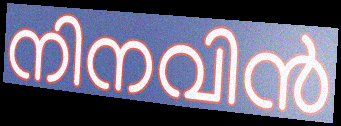
നിനവിൻ